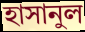
হাসানুল